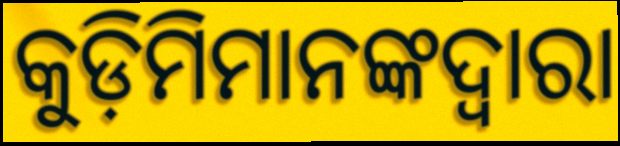
କୁଡ଼ିମିମାନଙ୍କଦ୍ୱାରା